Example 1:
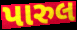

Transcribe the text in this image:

પારુલ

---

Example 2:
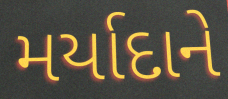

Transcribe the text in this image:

મર્યાદાને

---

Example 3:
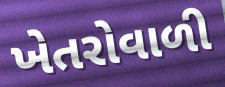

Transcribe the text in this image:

ખેતરોવાળી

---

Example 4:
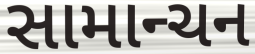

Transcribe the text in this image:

સામાન્ચન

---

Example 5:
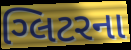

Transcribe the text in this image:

ગ્લિટરના